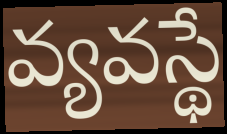
వ్యవస్థే